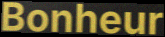
Bonheur